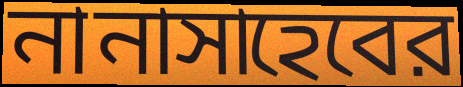
নানাসাহেবের